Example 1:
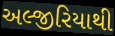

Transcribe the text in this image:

અલ્જીરિયાથી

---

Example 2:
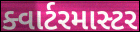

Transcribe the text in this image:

ક્વાર્ટરમાસ્ટર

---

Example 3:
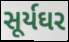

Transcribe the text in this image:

સૂર્યઘર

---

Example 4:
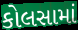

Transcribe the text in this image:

કોલસામાં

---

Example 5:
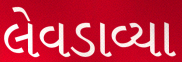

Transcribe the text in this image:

લેવડાવ્યા